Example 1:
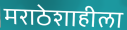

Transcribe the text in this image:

मराठेशाहीला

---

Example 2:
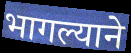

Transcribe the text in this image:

भागल्याने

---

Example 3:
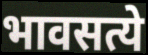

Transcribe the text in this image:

भावसत्ये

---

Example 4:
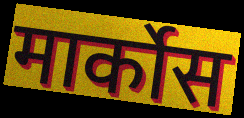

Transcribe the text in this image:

मार्कोस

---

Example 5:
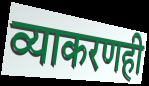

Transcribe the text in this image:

व्याकरणही